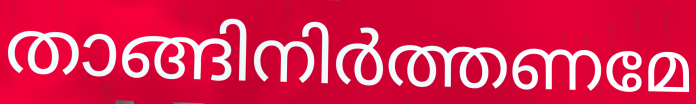
താങ്ങിനിർത്തണമേ